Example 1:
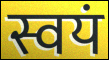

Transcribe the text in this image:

स्वयं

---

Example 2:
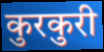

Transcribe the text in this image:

कुरकुरी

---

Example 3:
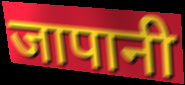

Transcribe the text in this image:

जापानी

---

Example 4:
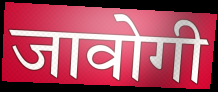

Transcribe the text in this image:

जावोगी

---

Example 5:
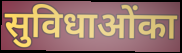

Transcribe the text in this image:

सुविधाओंका